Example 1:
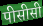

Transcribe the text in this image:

पीसीसी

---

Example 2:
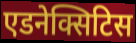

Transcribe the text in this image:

एडनेक्सिटिस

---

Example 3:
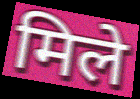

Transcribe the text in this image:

मिले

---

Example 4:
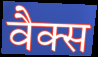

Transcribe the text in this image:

वैक्स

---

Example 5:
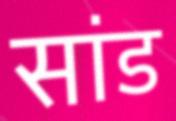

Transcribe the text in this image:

सांड